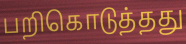
பறிகொடுத்தது